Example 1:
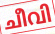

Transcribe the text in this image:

ചീവി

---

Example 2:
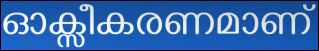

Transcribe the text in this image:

ഓക്സീകരണമാണ്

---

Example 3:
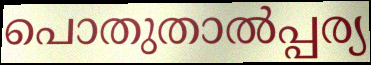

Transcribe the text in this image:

പൊതുതാൽപ്പര്യ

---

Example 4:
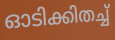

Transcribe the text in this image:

ഓടിക്കിതച്ച്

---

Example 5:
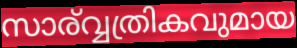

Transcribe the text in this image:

സാര്വ്വത്രികവുമായ